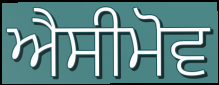
ਐਸੀਮੋਵ